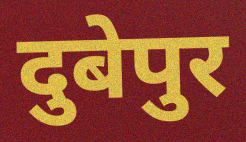
दुबेपुर